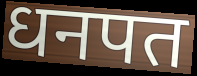
धनपत